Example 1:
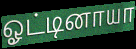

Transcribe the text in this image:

ஓட்டினாயா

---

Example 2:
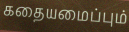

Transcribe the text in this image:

கதையமைப்பும்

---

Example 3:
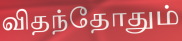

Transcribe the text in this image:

விதந்தோதும்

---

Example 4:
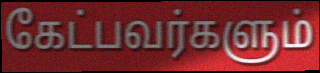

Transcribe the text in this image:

கேட்பவர்களும்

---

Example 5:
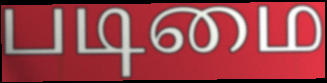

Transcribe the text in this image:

படிமை